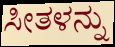
ಸೀತಳನ್ನು